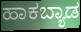
ಹಾಕಬ್ಯಾಡ